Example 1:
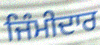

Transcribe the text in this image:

ਜਿੰਮੀਦਾਰ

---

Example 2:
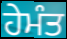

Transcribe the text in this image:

ਹੇਮੰਤ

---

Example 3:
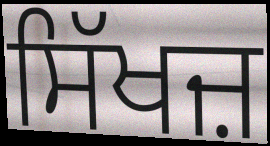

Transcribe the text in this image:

ਸਿੱਖਜ਼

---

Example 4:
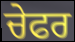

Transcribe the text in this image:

ਚੇਫਰ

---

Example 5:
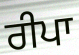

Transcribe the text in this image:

ਰੀਪਾ